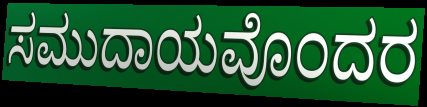
ಸಮುದಾಯವೊಂದರ